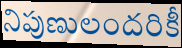
నిపుణులందరికీ